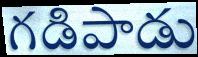
గడిపాడు